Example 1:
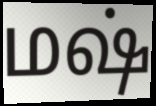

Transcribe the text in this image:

மஷ்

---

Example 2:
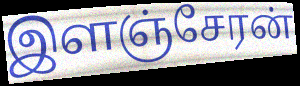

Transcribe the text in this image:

இளஞ்சேரன்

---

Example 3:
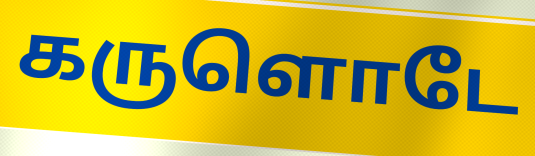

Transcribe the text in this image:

கருளொடே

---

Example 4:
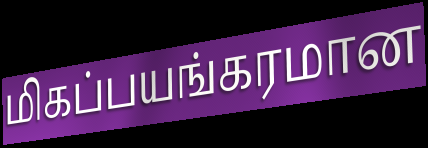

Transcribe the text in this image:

மிகப்பயங்கரமான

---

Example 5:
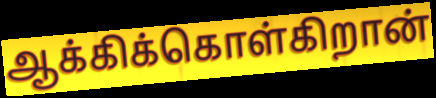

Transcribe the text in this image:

ஆக்கிக்கொள்கிறான்